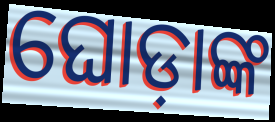
ଘୋଡ଼ାଙ୍କ